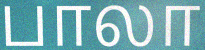
பாலா